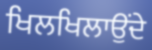
ਖਿਲਖਿਲਾਉਂਦੇ